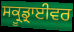
ਸਕ੍ਰੂਡ੍ਰਾਈਵਰ